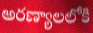
అరణ్యాలలోకి